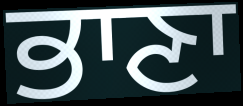
ਭਾਣਾ